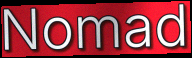
Nomad